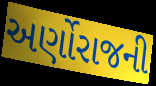
અર્ણોરાજની